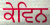
ਕੇਵਿਨ